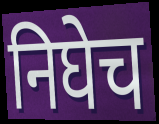
निघेच